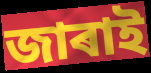
জাৰাই